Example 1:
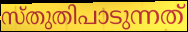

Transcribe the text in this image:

സ്തുതിപാടുന്നത്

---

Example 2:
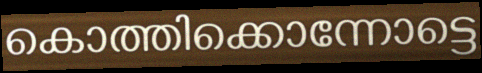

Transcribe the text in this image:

കൊത്തിക്കൊന്നോട്ടെ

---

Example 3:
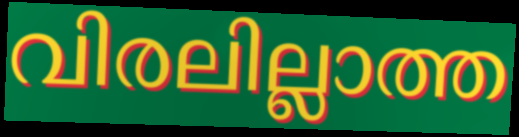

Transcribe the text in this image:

വിരലില്ലാത്ത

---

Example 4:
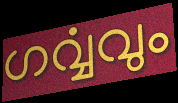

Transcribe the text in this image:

ഗൎവ്വവും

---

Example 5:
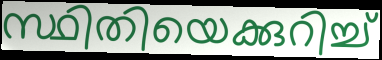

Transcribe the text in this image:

സ്ഥിതിയെക്കുറിച്ച്